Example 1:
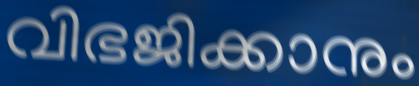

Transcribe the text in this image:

വിഭജിക്കാനും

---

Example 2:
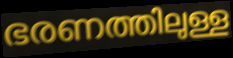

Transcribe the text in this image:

ഭരണത്തിലുള്ള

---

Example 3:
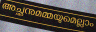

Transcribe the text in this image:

അച്ഛനുമമ്മയുമെല്ലാം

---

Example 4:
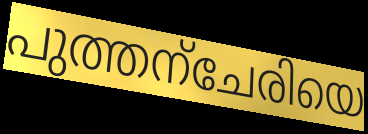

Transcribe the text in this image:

പുത്തന്ചേരിയെ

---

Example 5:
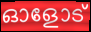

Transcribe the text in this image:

ഓളോട്